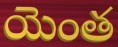
యెంత